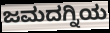
ಜಮದಗ್ನಿಯ